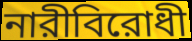
নারীবিরোধী